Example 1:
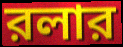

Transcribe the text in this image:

রলার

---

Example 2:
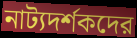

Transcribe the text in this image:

নাট্যদর্শকদের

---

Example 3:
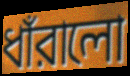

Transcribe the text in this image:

ধাঁরালো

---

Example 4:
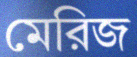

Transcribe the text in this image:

মেরিজ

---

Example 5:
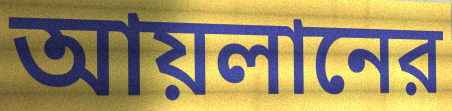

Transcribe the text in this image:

আয়লানের